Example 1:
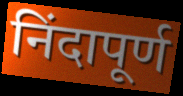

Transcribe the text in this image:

निंदापूर्ण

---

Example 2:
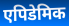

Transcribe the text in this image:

एपिडेमिक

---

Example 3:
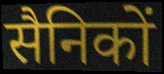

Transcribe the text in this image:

सैनिकों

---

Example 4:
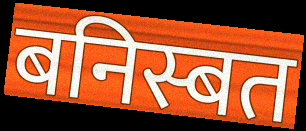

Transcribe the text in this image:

बनिस्‍बत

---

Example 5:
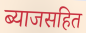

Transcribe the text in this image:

ब्याजसहित